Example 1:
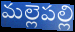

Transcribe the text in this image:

మల్లెపల్లి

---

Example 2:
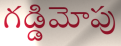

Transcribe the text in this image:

గడ్డిమోపు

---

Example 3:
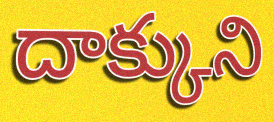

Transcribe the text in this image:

దాక్కుని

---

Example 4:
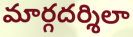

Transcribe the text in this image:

మార్గదర్శిలా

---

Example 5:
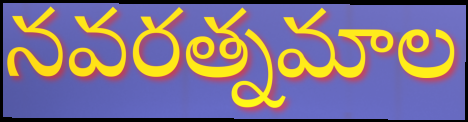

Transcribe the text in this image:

నవరత్నమాల